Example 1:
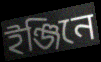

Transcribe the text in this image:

ইঞ্জিনে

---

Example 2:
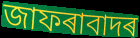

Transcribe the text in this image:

জাফৰাবাদৰ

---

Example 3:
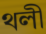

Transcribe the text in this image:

থলী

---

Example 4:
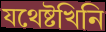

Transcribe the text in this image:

যথেষ্টখিনি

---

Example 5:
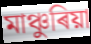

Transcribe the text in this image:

মাঞ্চুৰিয়া